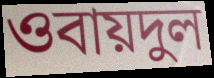
ওবায়দুল